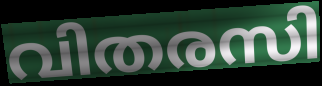
വിതരസി